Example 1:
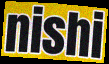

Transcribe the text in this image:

nishi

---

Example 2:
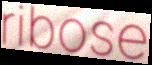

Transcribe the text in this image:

ribose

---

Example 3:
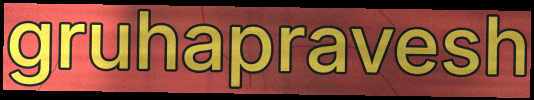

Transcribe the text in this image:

gruhapravesh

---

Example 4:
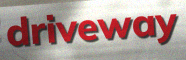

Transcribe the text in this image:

driveway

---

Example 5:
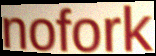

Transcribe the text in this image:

nofork